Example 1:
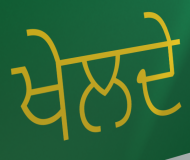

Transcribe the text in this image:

ਖੇਲਦੇ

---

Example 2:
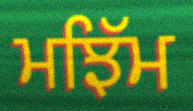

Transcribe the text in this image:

ਮਝਿੱਮ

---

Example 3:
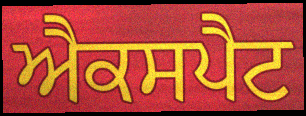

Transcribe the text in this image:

ਐਕਸਪੈਟ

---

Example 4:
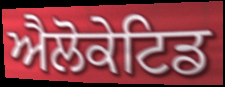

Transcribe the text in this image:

ਐਲੋਕੇਟਿਡ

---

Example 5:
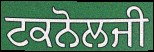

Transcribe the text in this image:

ਟਕਨੋਲਜੀ